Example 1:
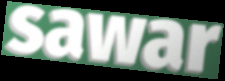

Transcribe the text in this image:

sawar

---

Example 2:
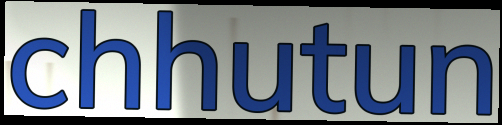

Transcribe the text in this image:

chhutun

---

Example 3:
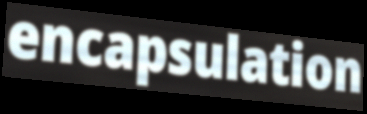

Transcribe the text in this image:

encapsulation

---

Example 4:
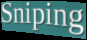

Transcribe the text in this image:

Sniping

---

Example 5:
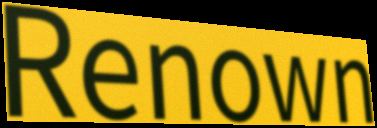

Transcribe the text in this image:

Renown